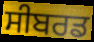
ਸੀਬਰਡ